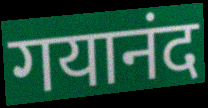
गयानंद